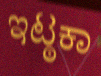
ಇಟ್ಠಕಾ